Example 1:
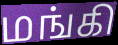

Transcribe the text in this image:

மங்கி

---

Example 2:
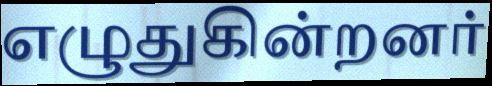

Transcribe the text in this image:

எழுதுகின்றனர்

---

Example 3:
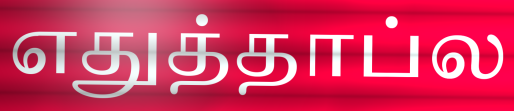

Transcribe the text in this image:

எதுத்தாப்ல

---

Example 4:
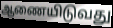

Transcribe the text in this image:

ஆணையிடுவது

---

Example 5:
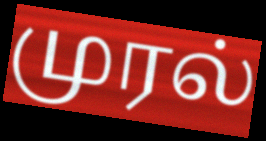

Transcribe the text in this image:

முரல்